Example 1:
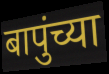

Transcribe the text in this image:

बापुंच्या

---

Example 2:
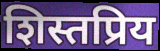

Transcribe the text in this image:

शिस्तप्रिय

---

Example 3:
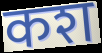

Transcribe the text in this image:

कश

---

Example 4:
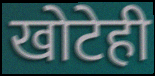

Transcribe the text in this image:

खोटेही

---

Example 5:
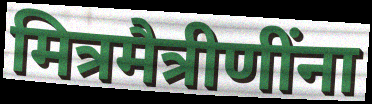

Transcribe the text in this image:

मित्रमैत्रीणींना